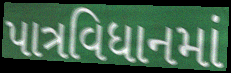
પાત્રવિધાનમાં